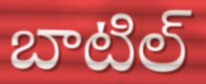
బాటిల్